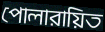
পোলারায়িত